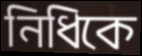
নিধিকে